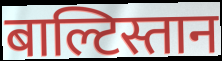
बाल्टिस्तान